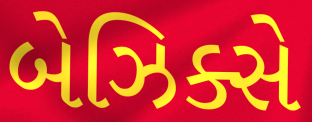
બેઝિક્સે